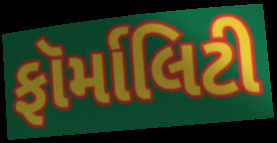
ફૉર્માલિટી